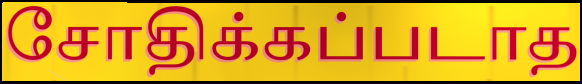
சோதிக்கப்படாத